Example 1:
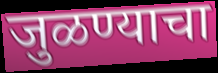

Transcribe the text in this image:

जुळण्याचा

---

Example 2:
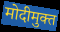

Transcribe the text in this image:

मोदीमुक्त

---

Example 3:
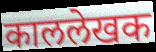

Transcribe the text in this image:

काललेखक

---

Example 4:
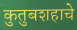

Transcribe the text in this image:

कुतुबशहाचे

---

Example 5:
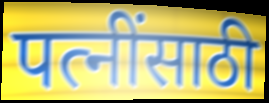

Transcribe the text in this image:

पत्नींसाठी